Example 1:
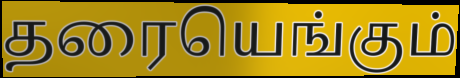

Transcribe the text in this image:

தரையெங்கும்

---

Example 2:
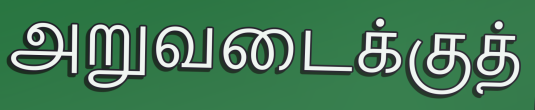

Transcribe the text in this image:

அறுவடைக்குத்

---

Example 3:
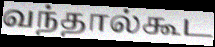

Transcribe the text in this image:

வந்தால்கூட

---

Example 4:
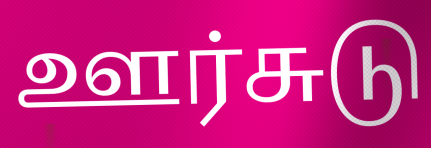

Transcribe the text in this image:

ஊர்சுடு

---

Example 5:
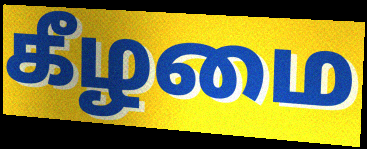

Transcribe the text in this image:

கீழமை